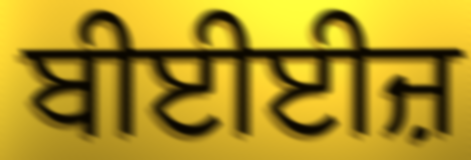
ਬੀਈਈਜ਼